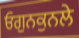
ਓਗੁਨਕੁਨਲੇ